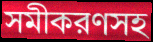
সমীকরণসহ